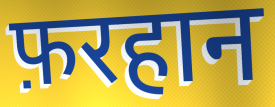
फ़रहान